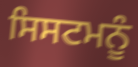
ਸਿਸਟਮਨੂੰ